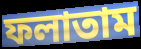
ফলাতাম